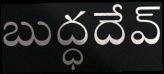
బుద్ధదేవ్